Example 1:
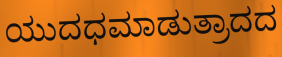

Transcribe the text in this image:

ಯುದಧಮಾಡುತ್ರಾದದ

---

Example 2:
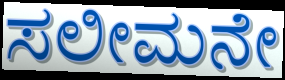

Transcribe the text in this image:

ಸಲೀಮನೇ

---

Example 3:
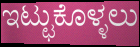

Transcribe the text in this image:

ಇಟ್ಟುಕೊಳ್ಳಲು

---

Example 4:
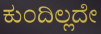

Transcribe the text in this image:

ಕುಂದಿಲ್ಲದೇ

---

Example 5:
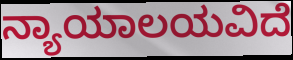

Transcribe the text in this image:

ನ್ಯಾಯಾಲಯವಿದೆ